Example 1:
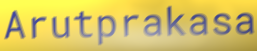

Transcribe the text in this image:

Arutprakasa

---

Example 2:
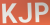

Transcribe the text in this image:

KJP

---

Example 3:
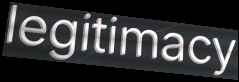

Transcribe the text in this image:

legitimacy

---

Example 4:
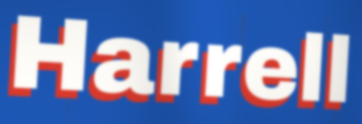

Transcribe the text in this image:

Harrell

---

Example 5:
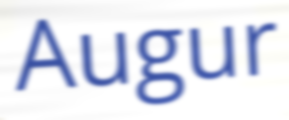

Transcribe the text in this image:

Augur